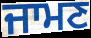
ਜਾਮਣ